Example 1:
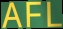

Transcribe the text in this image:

AFL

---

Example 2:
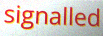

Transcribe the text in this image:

signalled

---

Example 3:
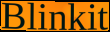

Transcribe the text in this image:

Blinkit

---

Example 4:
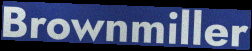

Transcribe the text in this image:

Brownmiller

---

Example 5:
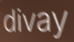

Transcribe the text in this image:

divay